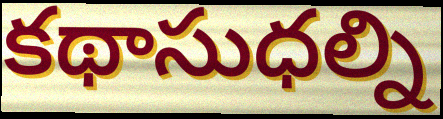
కథాసుధల్ని